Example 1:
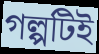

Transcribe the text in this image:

গল্পটিই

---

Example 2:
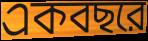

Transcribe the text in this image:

একবছরে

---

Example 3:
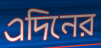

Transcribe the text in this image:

এদিনের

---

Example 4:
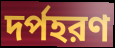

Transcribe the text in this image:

দর্পহরণ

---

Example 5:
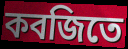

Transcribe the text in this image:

কবজিতে